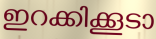
ഇറക്കിക്കൂടാ